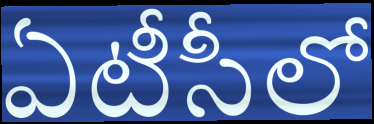
ఏటీసీలో